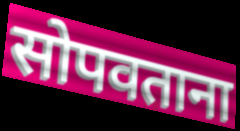
सोपवताना